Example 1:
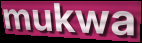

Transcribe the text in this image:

mukwa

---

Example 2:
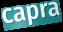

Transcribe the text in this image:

capra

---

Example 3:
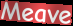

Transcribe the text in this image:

Meave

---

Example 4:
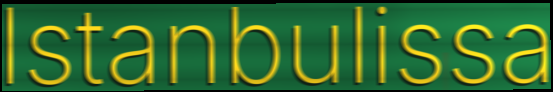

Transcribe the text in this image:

Istanbulissa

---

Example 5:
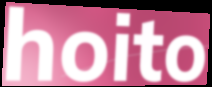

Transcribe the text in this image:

hoito